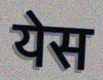
येस